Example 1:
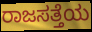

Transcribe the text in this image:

ರಾಜಸತ್ತೆಯ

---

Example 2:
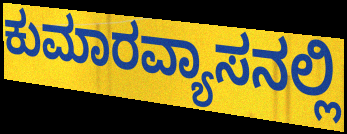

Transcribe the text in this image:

ಕುಮಾರವ್ಯಾಸನಲ್ಲಿ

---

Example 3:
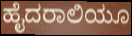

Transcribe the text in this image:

ಹೈದರಾಲಿಯೂ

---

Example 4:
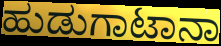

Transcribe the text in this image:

ಹುಡುಗಾಟಾನಾ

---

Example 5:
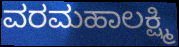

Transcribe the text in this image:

ವರಮಹಾಲಕ್ಷ್ಮಿ